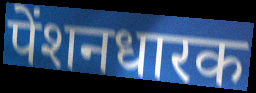
पेंशनधारक